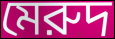
মেরুদ